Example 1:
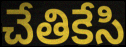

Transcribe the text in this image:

చేతికేసి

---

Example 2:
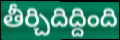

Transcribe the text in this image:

తీర్చిదిద్దింది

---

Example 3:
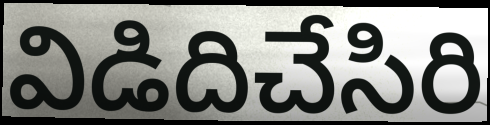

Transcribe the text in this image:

విడిదిచేసిరి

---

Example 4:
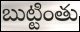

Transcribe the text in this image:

బుట్టింతు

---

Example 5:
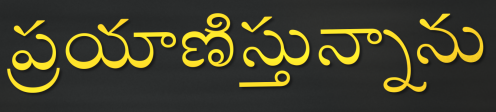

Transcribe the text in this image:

ప్రయాణిస్తున్నాను